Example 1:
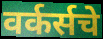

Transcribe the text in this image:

वर्कर्सचे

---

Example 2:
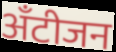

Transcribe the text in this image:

अँटीजन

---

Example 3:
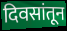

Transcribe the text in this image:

दिवसांतून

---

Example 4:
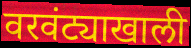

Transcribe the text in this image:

वरवंट्याखाली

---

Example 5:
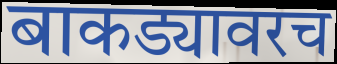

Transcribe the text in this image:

बाकड्यावरच